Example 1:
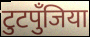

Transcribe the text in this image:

टुटपुँजिया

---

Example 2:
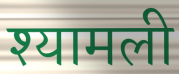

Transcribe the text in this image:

श्यामली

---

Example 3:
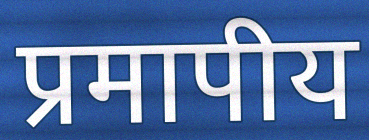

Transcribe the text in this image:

प्रमापीय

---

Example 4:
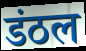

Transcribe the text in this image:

डंठल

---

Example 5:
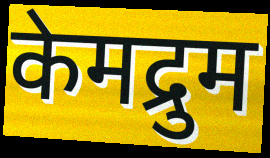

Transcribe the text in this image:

केमद्रुम